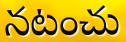
నటంచు